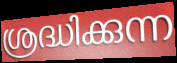
ശ്രദ്ധിക്കുന്ന